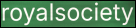
royalsociety